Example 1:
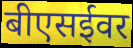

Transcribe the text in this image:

बीएसईवर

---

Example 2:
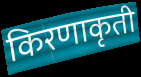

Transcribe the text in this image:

किरणाकृती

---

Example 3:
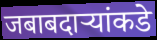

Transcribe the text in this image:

जबाबदाऱ्यांकडे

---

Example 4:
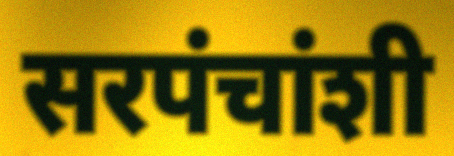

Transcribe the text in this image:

सरपंचांशी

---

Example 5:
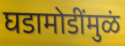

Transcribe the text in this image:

घडामोडींमुळं